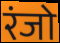
रंजो